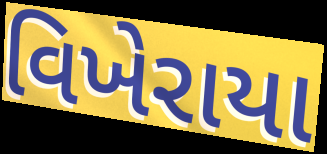
વિખેરાયા